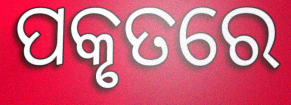
ପକୃତରେ